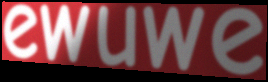
ewuwe